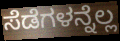
ಸೆಡೆಗಳನ್ನೆಲ್ಲ